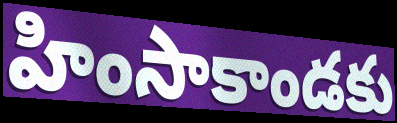
హింసాకాండకు